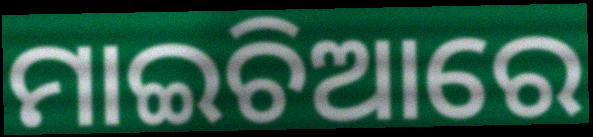
ମାଇଚିଆରେ